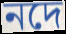
নদে